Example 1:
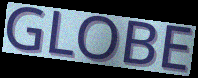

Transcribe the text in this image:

GLOBE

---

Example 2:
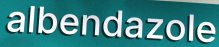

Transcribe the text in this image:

albendazole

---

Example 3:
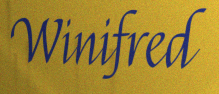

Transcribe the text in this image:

Winifred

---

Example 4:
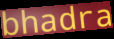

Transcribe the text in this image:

bhadra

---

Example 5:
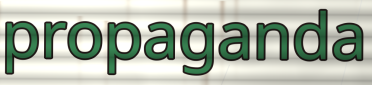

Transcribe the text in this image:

propaganda